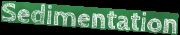
Sedimentation